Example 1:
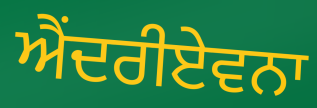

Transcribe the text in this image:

ਐਂਦਰੀਏਵਨਾ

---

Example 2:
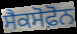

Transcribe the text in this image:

ਸੈਕਸੋਫ਼ੋਨ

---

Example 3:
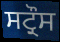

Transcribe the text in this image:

ਸਟ੍ਰੌਸ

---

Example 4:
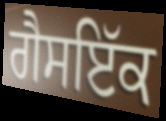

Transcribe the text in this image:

ਗੈਸਇੱਕ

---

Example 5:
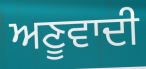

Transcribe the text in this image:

ਅਣੂਵਾਦੀ